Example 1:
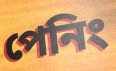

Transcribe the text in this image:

পেনিং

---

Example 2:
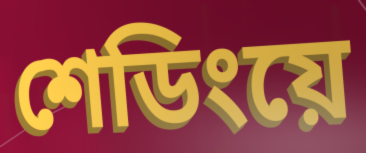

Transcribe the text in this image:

শেডিংয়ে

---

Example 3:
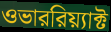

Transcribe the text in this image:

ওভাররিয়্যাক্ট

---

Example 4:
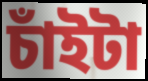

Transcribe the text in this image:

চাঁইটা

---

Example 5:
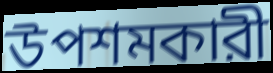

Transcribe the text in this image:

উপশমকারী